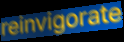
reinvigorate